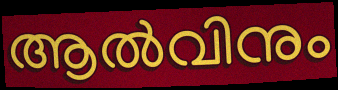
ആൽവിനും